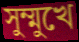
সুম্মুখে